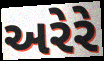
અરેરે